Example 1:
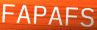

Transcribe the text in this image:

FAPAFS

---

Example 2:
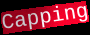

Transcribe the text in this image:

Capping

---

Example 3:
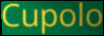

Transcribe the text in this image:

Cupolo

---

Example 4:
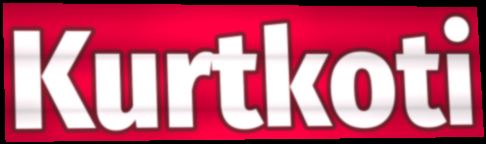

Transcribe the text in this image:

Kurtkoti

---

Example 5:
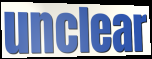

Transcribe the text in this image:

unclear